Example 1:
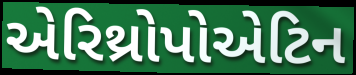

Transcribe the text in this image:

એરિથ્રોપોએટિન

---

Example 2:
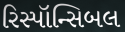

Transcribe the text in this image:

રિસ્પૉન્સિબલ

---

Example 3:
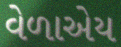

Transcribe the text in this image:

વેળાએય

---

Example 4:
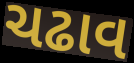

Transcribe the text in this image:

ચઢાવ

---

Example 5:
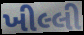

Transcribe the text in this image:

ખીલ્લી